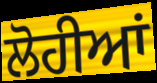
ਲੋਹੀਆਂ